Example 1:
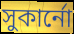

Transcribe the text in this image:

সুকার্নো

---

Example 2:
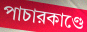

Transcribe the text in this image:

পাচারকাণ্ডে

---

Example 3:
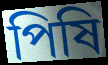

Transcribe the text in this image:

পিষি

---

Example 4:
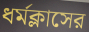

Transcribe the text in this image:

ধর্মক্লাসের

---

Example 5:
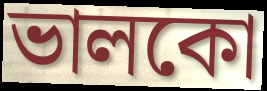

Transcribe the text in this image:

ভালকো